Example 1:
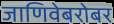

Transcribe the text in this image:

जाणिवेबरोबर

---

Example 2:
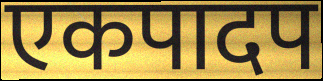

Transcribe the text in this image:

एकपादप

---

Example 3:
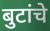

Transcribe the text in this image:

बुटांचे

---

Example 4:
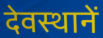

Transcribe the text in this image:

देवस्थानें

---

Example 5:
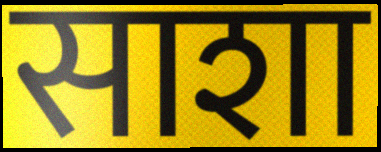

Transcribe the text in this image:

साशा